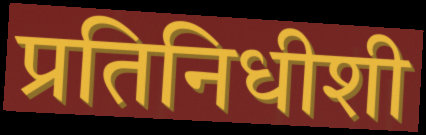
प्रतिनिधीशी